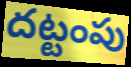
దట్టంపు